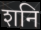
शनि